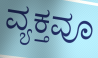
ವ್ಯಕ್ತವೂ